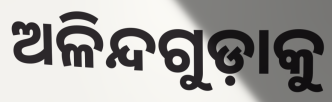
ଅଳିନ୍ଦଗୁଡ଼ାକୁ